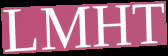
LMHT